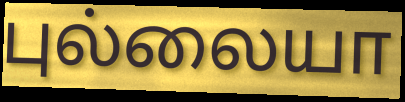
புல்லையா